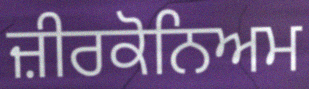
ਜ਼ੀਰਕੋਨਿਅਮ